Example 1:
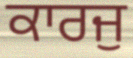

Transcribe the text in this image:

ਕਾਰਜੁ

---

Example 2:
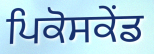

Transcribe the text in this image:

ਪਿਕੋਸਕੇਂਡ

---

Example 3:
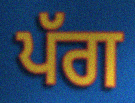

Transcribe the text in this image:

ਪੱਗ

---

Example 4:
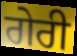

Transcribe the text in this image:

ਗੇਰੀ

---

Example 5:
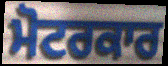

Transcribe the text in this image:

ਮੋਟਰਕਾਰ